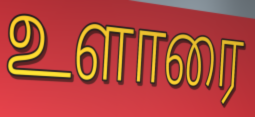
உளாரை